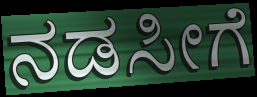
ನಡಸೀಗೆ